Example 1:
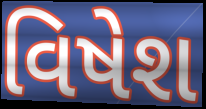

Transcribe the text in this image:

વિષેશ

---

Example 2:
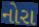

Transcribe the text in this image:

નોરા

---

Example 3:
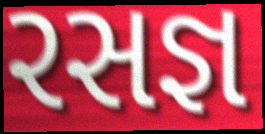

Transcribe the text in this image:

રસજ્ઞ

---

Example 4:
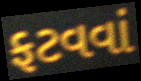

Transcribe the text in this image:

ફટવવાં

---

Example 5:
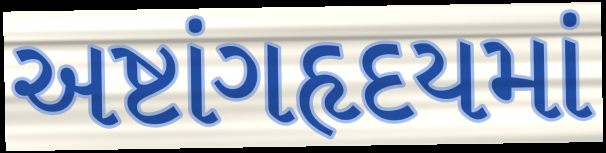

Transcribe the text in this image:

અષ્ટાંગહૃદયમાં